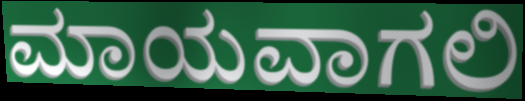
ಮಾಯವಾಗಲಿ